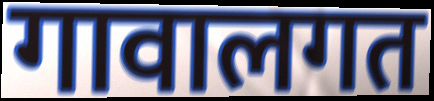
गावालगत